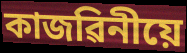
কাজৱিনীয়ে